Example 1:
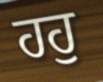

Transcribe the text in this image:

ਹਹੁ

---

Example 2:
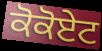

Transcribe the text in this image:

ਕੋਕੋਏਟ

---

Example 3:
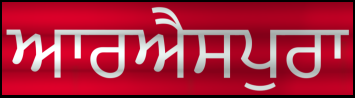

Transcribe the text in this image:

ਆਰਐਸਪੁਰਾ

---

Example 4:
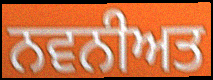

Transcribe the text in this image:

ਨਵਨੀਅਤ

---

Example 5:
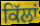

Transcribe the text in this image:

ਕਿੱਲਾਂ